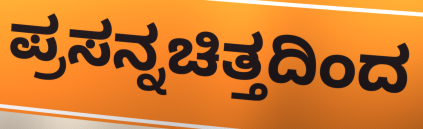
ಪ್ರಸನ್ನಚಿತ್ತದಿಂದ